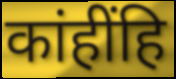
कांहींहि